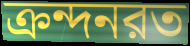
ক্রন্দনরত